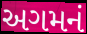
અગમનં